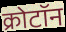
क्रोटॉन